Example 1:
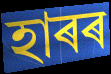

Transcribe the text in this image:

হাৰৰ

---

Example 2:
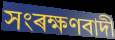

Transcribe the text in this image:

সংৰক্ষণবাদী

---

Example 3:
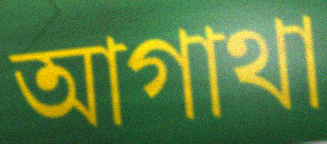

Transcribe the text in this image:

আগাথা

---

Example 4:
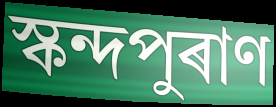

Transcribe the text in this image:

স্কন্দপুৰাণ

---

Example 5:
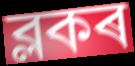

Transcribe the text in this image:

ব্লকৰ